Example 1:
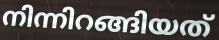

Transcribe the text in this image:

നിന്നിറങ്ങിയത്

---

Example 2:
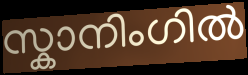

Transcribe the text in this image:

സ്കാനിംഗിൽ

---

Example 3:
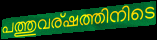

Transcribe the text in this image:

പത്തുവര്ഷത്തിനിടെ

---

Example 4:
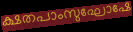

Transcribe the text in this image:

ക്ഷതപാംസുഘോഷേ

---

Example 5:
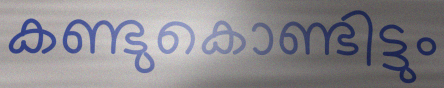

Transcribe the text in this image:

കണ്ടുകൊണ്ടിട്ടും